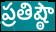
ప్రతిష్ఠౌ